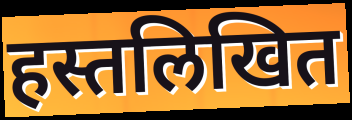
हस्तलिखित